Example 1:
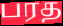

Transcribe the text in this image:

பரத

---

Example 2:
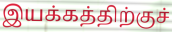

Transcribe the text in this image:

இயக்கத்திற்குச்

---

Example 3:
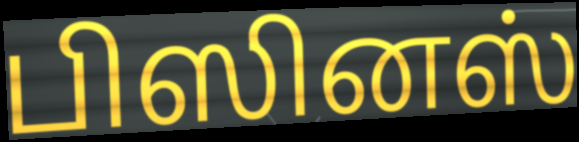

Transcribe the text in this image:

பிஸினஸ்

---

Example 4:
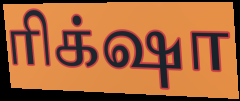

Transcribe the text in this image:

ரிக்‌ஷா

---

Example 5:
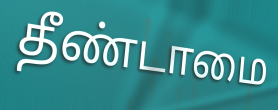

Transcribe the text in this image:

தீண்டாமை